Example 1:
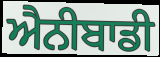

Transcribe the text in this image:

ਐਨੀਬਾਡੀ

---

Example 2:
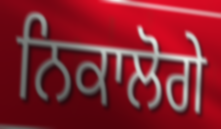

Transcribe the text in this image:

ਨਿਕਾਲੋਗੇ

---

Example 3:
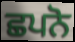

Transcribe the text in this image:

ਛਪਨੋ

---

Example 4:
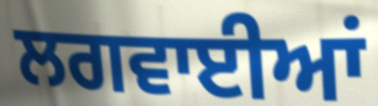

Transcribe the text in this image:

ਲਗਵਾਈਆਂ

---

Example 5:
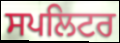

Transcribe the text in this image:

ਸਪਲਿਟਰ